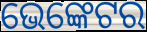
ଭେଙ୍କେଟର